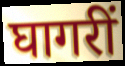
घागरीं